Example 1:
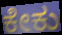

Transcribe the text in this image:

ಕೇಕು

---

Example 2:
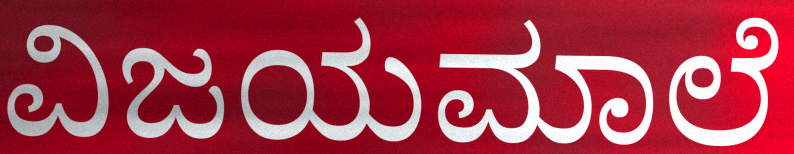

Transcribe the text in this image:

ವಿಜಯಮಾಲೆ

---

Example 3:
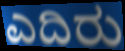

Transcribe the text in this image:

ಎದಿರು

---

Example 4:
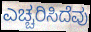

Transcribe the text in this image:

ಎಚ್ಚರಿಸಿದೆವು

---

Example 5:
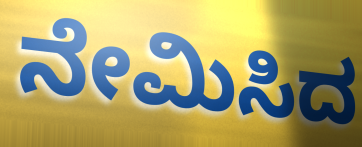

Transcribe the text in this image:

ನೇಮಿಸಿದ